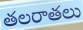
తలరాతలు